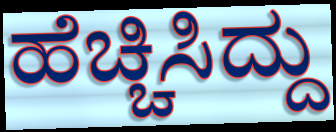
ಹೆಚ್ಚಿಸಿದ್ದು